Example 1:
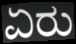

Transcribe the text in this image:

ಏರು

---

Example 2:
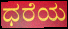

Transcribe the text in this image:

ಧರೆಯ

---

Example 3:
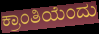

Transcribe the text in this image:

ಕ್ರಾಂತಿಯೆಂದು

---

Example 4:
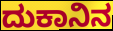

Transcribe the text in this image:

ದುಕಾನಿನ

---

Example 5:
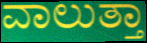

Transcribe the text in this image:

ವಾಲುತ್ತಾ